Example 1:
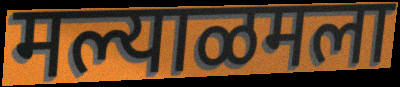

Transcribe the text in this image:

मल्याळमला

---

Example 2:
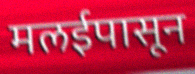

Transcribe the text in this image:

मलईपासून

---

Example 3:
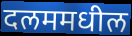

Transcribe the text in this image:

दलममधील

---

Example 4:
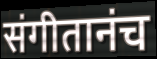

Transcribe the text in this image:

संगीतानंच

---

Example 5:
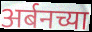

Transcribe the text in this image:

अर्बनच्या